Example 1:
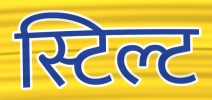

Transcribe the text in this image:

स्टिल्ट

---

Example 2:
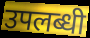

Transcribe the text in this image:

उपलब्धी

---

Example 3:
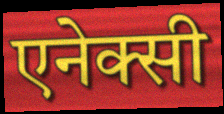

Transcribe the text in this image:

एनेक्‍सी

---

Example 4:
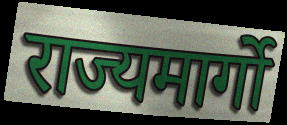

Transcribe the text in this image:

राज्यमार्गो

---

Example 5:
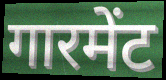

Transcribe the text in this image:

गारमेंट